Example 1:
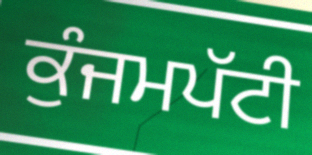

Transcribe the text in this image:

ਕੁੰਜਮਪੱਟੀ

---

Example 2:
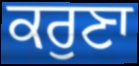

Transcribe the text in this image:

ਕਰੁਣਾ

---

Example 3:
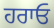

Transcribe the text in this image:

ਹਰਾਓ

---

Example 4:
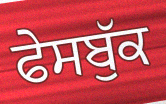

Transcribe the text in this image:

ਫੇਸਬੁੱਕ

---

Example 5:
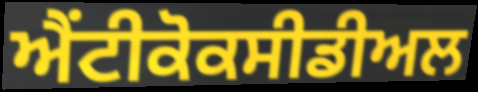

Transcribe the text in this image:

ਐਂਟੀਕੋਕਸੀਡੀਅਲ